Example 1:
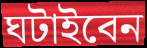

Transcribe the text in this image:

ঘটাইবেন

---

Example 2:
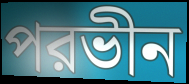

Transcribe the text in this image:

পরভীন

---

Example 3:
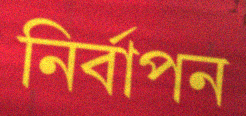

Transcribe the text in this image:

নির্বাপন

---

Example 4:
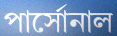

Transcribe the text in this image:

পার্সোনাল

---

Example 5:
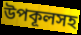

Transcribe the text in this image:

উপকূলসহ